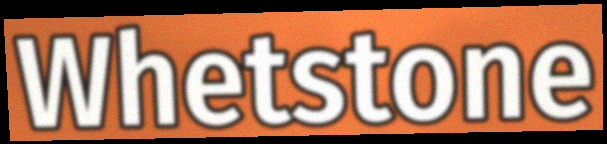
Whetstone